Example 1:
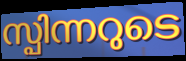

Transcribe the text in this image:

സ്പിന്നറുടെ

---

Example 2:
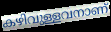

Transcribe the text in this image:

കഴിവുള്ളവനാണ്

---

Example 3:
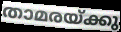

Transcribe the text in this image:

താമരയ്ക്കു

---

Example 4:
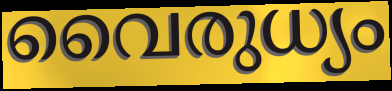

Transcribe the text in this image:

വൈരുധ്യം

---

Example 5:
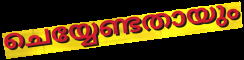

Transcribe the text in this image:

ചെയ്യേണ്ടതായും